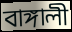
বাঙ্গালী